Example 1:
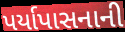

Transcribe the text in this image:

પર્યાપાસનાની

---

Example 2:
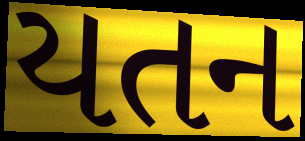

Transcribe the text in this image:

યતન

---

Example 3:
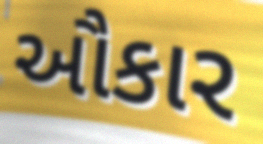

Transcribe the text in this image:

ઔકાર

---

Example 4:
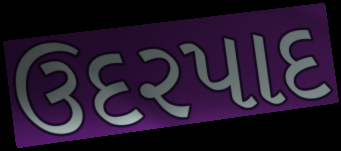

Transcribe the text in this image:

ઉદરપાદ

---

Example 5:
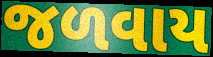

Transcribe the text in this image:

જળવાય